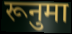
रूनुमा